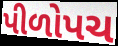
પીળોપચ